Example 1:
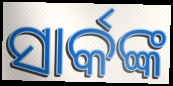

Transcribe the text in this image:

ସାର୍କଙ୍କ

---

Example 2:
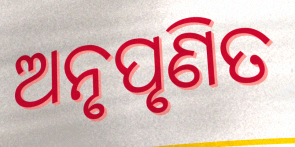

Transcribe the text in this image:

ଅନୃପୃଣିତ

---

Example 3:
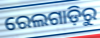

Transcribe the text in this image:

ରେଲଗାଡ଼ିରୁ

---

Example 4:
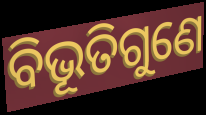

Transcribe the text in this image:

ବିଭୂତିଗୁଣେ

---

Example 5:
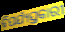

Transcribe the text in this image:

ବିପର୍ଯ୍ୟସ୍ତକାରୀ